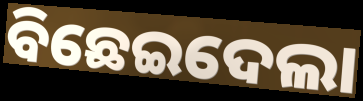
ବିଛେଇଦେଲା